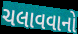
ચલાવવાનો